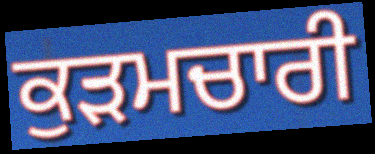
ਕੁੜਮਚਾਰੀ